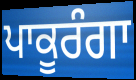
ਪਾਕੂਰੰਗਾ